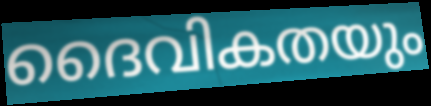
ദൈവികതയും